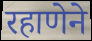
रहाणेने